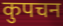
कुपचन